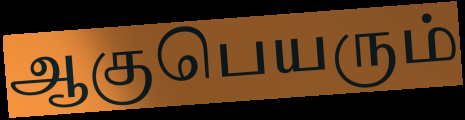
ஆகுபெயரும்